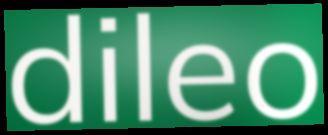
dileo